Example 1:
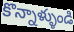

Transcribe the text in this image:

కొన్నాళ్ళుండి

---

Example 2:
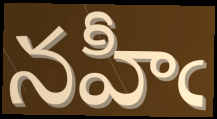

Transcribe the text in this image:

నహీఁ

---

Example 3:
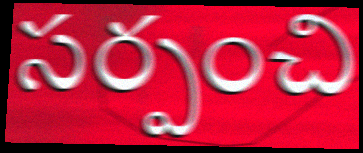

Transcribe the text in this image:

సర్పంచి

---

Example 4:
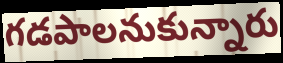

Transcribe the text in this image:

గడపాలనుకున్నారు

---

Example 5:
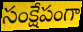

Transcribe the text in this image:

సంక్షేపంగా